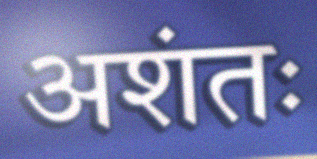
अशंतः